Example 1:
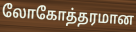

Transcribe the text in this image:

லோகோத்தரமான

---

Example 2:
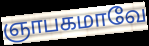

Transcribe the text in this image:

ஞாபகமாவே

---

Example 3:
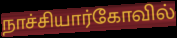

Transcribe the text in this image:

நாச்சியார்கோவில்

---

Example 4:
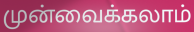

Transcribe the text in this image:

முன்வைக்கலாம்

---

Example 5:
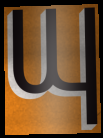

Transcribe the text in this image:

யு